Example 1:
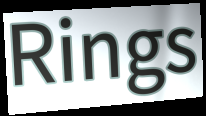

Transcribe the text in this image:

Rings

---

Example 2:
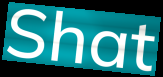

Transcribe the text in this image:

Shat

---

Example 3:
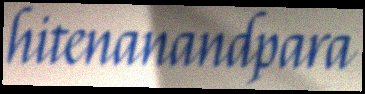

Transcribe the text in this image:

hitenanandpara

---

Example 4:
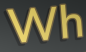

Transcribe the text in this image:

Wh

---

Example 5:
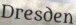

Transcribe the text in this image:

Dresden